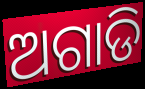
ଅଗାଡି